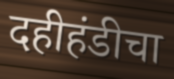
दहीहंडीचा